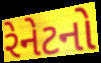
રેનેટનો